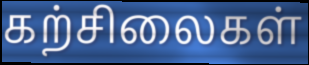
கற்சிலைகள்